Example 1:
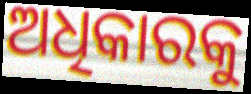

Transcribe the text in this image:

ଅଧିକାରକୁ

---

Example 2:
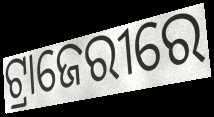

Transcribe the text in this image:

ଟ୍ରାଜେରୀରେ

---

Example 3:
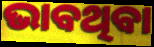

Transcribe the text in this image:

ଭାବଥିବା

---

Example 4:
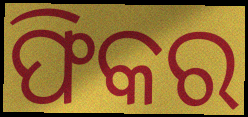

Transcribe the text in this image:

ଫିକର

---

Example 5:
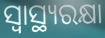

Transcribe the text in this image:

ସ୍ବାସ୍ଥ୍ୟରକ୍ଷା